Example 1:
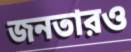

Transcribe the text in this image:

জনতারও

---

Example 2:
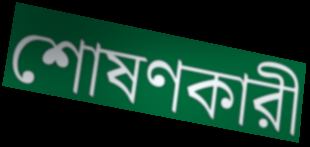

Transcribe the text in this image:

শোষণকারী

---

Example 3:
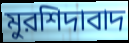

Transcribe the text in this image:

মুরশিদাবাদ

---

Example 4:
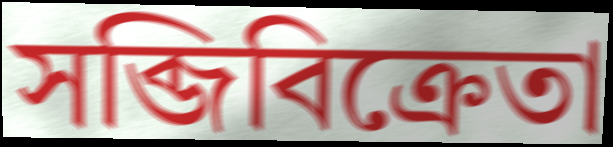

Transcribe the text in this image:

সব্জিবিক্রেতা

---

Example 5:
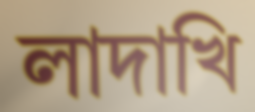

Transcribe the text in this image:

লাদাখি